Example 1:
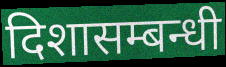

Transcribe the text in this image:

दिशासम्बन्धी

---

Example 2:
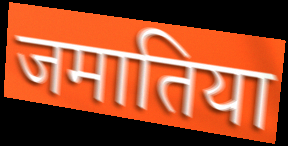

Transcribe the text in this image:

जमातिया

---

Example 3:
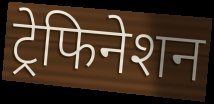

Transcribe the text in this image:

ट्रेफिनेशन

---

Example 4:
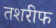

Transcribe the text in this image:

तशरीफ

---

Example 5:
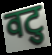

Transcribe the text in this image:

वटु